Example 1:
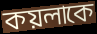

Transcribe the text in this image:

কয়লাকে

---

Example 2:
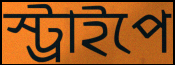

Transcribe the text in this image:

স্ট্রাইপে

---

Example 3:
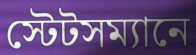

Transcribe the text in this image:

স্টেটসম্যানে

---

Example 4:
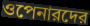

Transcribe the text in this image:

ওপেনারদের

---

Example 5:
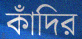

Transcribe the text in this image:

কাঁদির